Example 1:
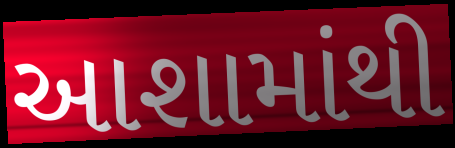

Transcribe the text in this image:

આશામાંથી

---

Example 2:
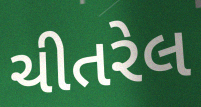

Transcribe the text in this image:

ચીતરેલ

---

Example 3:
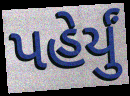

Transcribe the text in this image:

પહેર્યું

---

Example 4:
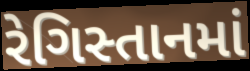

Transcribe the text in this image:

રેગિસ્તાનમાં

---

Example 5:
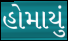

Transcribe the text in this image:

હોમાયું